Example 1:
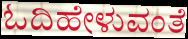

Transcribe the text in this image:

ಓದಿಹೇಳುವಂತೆ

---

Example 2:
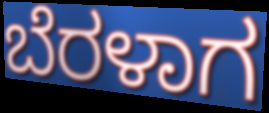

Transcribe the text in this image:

ಬೆರಳಾಗ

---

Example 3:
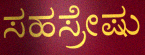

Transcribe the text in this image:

ಸಹಸ್ರೇಷು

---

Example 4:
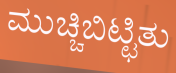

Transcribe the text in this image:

ಮುಚ್ಚಿಬಿಟ್ಟಿತು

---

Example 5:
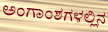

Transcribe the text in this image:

ಅಂಗಾಂಶಗಳಲ್ಲಿನ